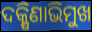
ଦକ୍ଷିଣାଭିମୁଖ